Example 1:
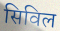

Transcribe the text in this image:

सिविल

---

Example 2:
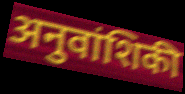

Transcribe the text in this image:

अनुवांशिकी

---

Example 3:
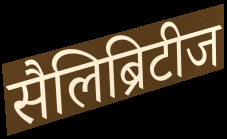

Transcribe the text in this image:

सैलिब्रिटीज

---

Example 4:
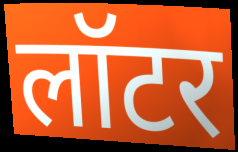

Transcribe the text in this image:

लॉटर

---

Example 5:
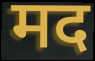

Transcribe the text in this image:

मद